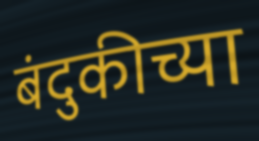
बंदुकीच्या